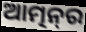
ଆତ୍ମନ୍‌ର